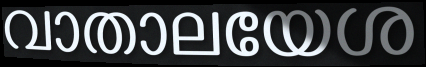
വാതാലയേശ